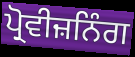
ਪ੍ਰੋਵੀਜ਼ਨਿੰਗ